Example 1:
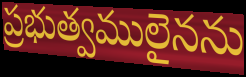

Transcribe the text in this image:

ప్రభుత్వములైనను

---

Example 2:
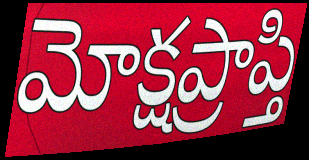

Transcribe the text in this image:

మోక్షప్రాప్తి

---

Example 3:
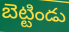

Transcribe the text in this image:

బెట్టిండు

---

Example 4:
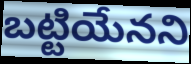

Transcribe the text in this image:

బట్టియేనని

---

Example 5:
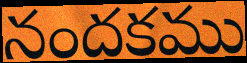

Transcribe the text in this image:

నందకము